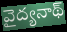
వైద్యనాథ్